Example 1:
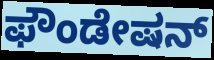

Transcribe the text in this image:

ಫೌಂಡೇಷನ್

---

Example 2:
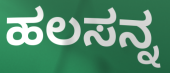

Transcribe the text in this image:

ಹಲಸನ್ನ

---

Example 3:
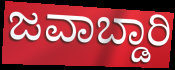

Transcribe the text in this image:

ಜವಾಬ್ಡಾರಿ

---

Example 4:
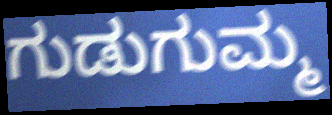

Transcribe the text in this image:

ಗುಡುಗುಮ್ಮ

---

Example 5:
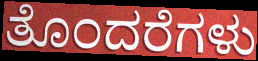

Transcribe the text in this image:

ತೊಂದರೆಗಳು